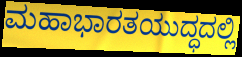
ಮಹಾಭಾರತಯುದ್ಧದಲ್ಲಿ